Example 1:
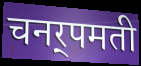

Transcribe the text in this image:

चनर्पमती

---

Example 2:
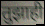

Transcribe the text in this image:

तुझाही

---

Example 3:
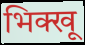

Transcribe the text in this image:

भिक्खू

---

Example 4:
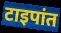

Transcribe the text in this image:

टाइपांत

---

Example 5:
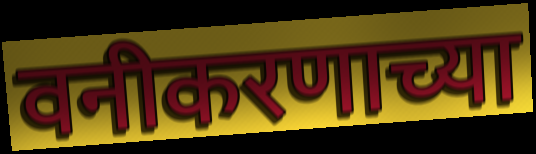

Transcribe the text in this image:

वनीकरणाच्या